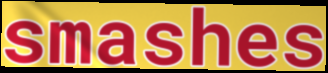
smashes